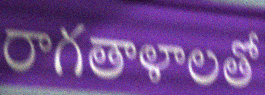
రాగతాళాలతో